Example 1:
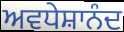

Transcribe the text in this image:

ਅਵਧੇਸ਼ਾਨੰਦ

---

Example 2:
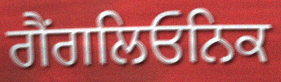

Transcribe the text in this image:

ਗੈਂਗਲਿਓਨਿਕ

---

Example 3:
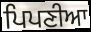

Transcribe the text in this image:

ਪਿਪਣੀਆ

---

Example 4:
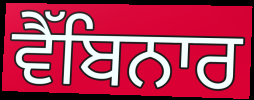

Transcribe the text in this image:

ਵੈੱਬਿਨਾਰ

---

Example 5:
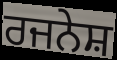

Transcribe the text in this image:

ਰਜਨੇਸ਼